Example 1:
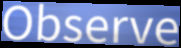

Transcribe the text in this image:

Observe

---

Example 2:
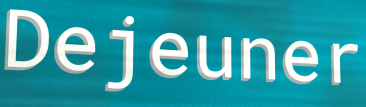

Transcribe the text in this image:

Dejeuner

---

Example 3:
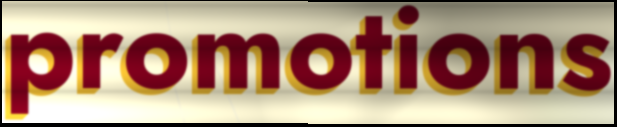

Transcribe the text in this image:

promotions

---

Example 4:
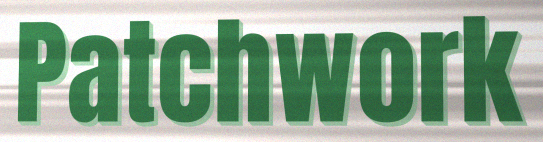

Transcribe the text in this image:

Patchwork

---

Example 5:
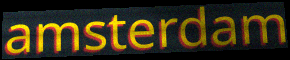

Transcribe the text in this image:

amsterdam